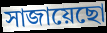
সাজায়েছো